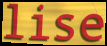
lise